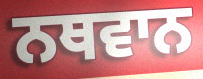
ਨਥਵਾਨ